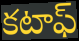
కటాఫ్